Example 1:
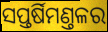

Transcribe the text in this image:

ସପ୍ତର୍ଷିମଣ୍ତଳର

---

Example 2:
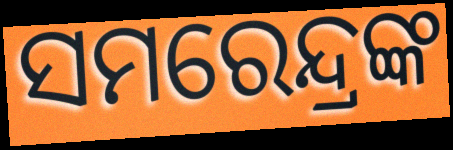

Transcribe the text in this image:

ସମରେନ୍ଦ୍ରଙ୍କ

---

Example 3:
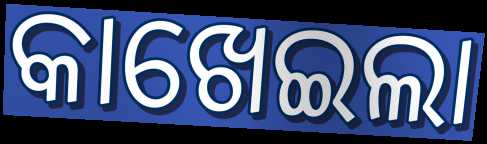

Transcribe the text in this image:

କାଖେଇଲା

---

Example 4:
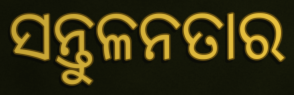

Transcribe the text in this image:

ସନ୍ତୁଳନତାର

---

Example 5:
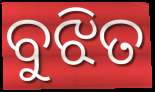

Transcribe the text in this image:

ବୁଝିତ